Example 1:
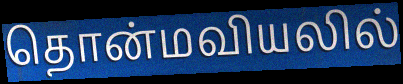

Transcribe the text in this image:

தொன்மவியலில்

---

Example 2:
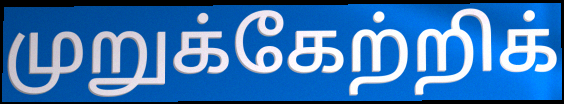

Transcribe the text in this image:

முறுக்கேற்றிக்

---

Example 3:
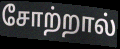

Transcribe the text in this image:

சோற்றால்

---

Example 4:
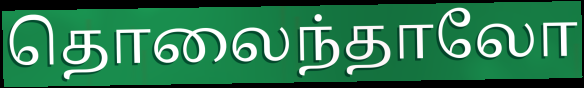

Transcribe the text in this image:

தொலைந்தாலோ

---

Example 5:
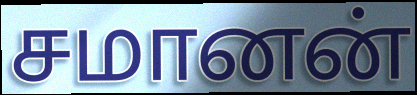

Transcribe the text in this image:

சமானன்